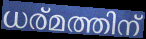
ധര്മത്തിന്